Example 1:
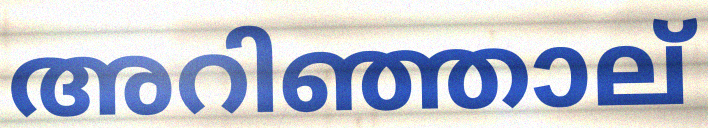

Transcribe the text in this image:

അറിഞ്ഞാല്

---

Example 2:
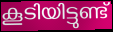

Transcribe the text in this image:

കൂടിയിട്ടുണ്ട്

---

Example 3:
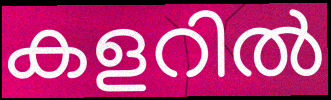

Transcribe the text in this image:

കളറിൽ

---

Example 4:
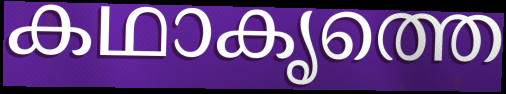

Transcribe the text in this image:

കഥാകൃത്തെ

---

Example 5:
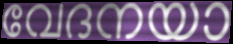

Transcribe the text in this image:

വേദനയാ